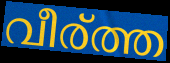
വീര്ത്ത